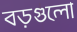
বড়গুলো